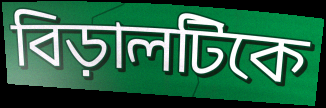
বিড়ালটিকে